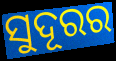
ସୁଦୂରର